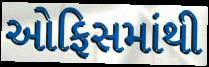
ઓફિસમાંથી